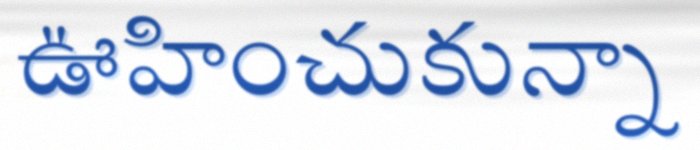
ఊహించుకున్నా